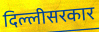
दिल्लीसरकार